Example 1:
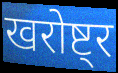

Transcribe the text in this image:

खरोष्ट्र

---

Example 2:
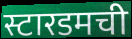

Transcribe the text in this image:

स्टारडमची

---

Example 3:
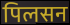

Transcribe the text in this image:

पिलसन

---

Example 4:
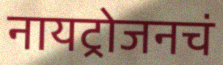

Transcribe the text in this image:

नायट्रोजनचं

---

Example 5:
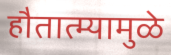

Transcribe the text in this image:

हौतात्म्यामुळे